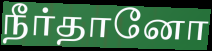
நீர்தானோ